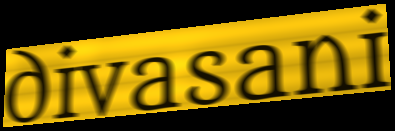
divasani